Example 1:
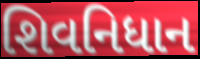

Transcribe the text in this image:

શિવનિધાન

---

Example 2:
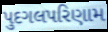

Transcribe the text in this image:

પુદગલપરિણામ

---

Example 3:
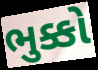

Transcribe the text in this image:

ભુક્કો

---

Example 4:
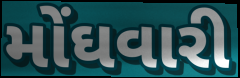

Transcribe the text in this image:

મોંઘવારી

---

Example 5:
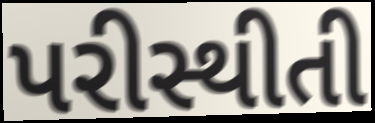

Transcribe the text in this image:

પરીસ્થીતી